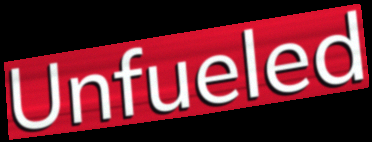
Unfueled